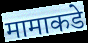
मामाकडे